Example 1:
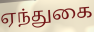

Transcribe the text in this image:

ஏந்துகை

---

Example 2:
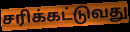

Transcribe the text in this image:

சரிக்கட்டுவது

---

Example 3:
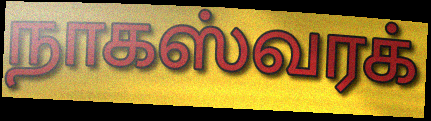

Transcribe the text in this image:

நாகஸ்வரக்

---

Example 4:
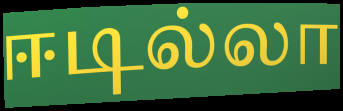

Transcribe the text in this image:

ஈடில்லா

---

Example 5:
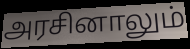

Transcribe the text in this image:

அரசினாலும்